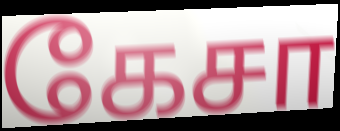
கேசா